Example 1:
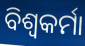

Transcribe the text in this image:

ବିଶ୍ବକର୍ମା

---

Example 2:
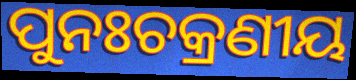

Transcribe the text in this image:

ପୁନଃଚକ୍ରଣୀୟ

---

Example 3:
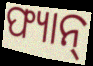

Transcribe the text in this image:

ଫ୍ୟାନ୍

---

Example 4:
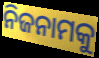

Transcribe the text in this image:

ନିଜନାମକୁ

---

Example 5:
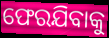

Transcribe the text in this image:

ଫେରଯିବାକୁ